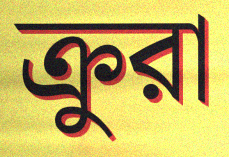
ক্রুরা